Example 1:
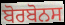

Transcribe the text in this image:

ਬੋਰਬੋਨਸ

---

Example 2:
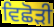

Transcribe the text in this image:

ਵਿਛੋੜੀ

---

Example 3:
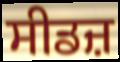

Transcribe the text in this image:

ਸੀਡਜ਼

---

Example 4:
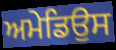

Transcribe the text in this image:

ਅਮੇਡਿਉਸ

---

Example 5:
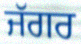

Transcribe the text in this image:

ਜੱਗਰ